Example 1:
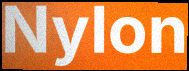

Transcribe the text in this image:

Nylon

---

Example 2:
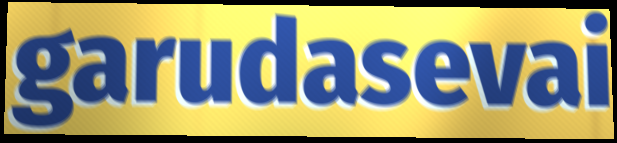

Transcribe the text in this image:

garudasevai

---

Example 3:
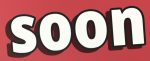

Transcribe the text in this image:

soon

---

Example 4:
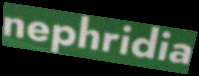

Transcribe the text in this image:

nephridia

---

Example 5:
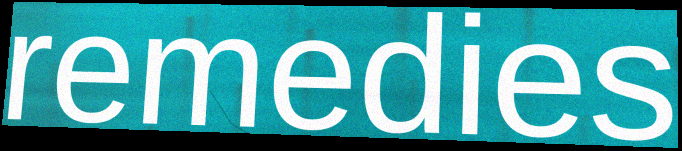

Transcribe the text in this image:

remedies